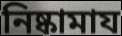
নিষ্কামায